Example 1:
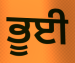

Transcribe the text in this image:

ਭੂਈ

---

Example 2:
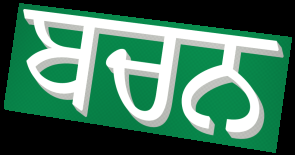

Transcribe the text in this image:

ਬਚਨ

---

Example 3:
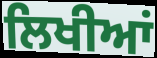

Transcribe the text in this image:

ਲਿਖੀਆਂ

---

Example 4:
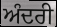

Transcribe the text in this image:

ਅੰਦਰੀ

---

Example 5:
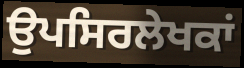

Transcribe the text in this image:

ਉਪਸਿਰਲੇਖਕਾਂ